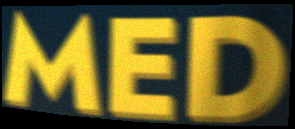
MED